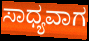
ಸಾಧ್ಯವಾಗ